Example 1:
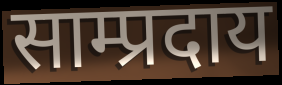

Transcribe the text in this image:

साम्प्रदाय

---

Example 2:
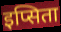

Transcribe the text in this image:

इप्सिता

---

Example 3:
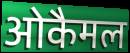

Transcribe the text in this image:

ओकैमल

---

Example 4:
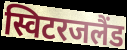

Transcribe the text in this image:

स्विटरजलैंड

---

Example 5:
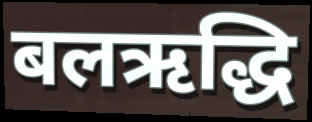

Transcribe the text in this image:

बलऋद्धि